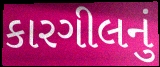
કારગીલનું